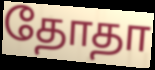
தோதா